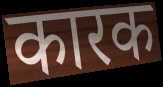
कारक